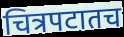
चित्रपटातच